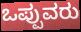
ಒಪ್ಪುವರು